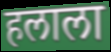
हलाला